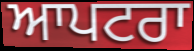
ਆਪਟਰਾ